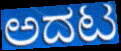
ಅದಟ